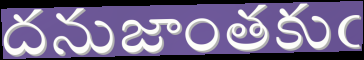
దనుజాంతకుఁ